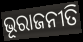
ଭୂରାଜନୀତି